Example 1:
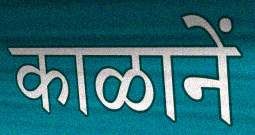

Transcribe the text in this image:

काळानें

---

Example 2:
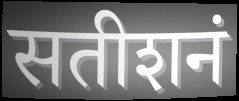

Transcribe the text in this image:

सतीशनं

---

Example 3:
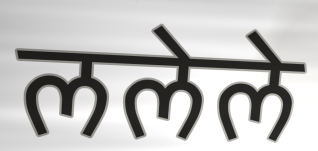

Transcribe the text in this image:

ललेले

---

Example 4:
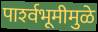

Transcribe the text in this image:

पार्श्‍वभूमीमुळे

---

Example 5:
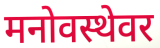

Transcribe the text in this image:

मनोवस्थेवर